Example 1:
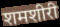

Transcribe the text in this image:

शमशीरी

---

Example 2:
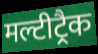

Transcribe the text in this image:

मल्टीट्रैक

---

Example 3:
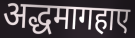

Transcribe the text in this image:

अद्धमागहाए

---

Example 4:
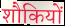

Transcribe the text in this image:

शौकियों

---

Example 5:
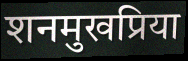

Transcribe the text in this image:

शनमुखप्रिया